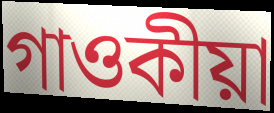
গাওকীয়া